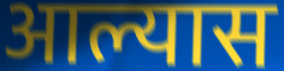
आल्यास